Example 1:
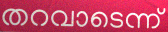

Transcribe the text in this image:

തറവാടെന്ന്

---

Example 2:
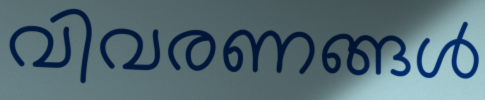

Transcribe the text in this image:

വിവരണങ്ങൾ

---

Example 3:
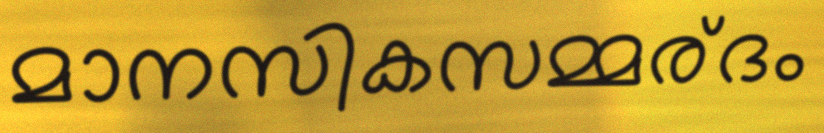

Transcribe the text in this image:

മാനസികസമ്മര്ദം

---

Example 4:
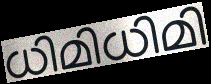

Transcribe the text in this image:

ധിമിധിമി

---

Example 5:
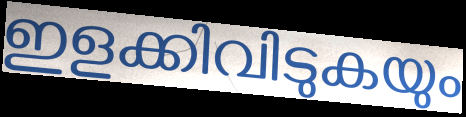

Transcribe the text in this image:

ഇളക്കിവിടുകയും